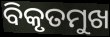
ବିକୃତମୁଖ